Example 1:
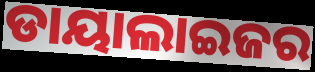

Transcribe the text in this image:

ଡାୟାଲାଇଜର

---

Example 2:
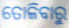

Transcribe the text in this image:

ତୋଳିବାରୁ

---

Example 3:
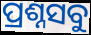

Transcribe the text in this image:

ପ୍ରଶ୍ନସବୁ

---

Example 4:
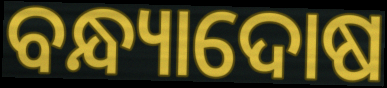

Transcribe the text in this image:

ବନ୍ଧ୍ୟାଦୋଷ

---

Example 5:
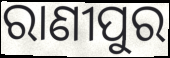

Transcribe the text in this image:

ରାଣୀପୁର